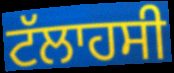
ਟੱਲਾਹਸੀ